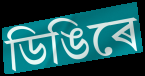
ডিঙিৰে